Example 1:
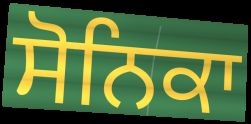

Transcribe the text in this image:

ਸੋਨਿਕਾ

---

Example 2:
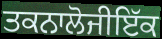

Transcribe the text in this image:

ਤਕਨਾਲੋਜੀਇੱਕ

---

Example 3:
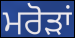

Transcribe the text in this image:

ਮਰੋੜਾਂ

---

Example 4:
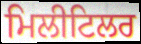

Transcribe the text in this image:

ਮਿਲੀਟਿਲਰ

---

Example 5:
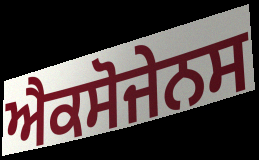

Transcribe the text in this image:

ਐਕਸੋਜੇਨਸ